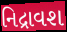
નિદ્રાવશ